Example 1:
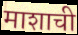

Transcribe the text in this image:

माशाची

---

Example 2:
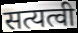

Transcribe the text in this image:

सत्यत्वी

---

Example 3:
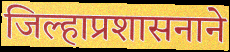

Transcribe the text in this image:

जिल्हाप्रशासनाने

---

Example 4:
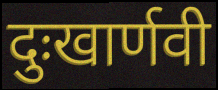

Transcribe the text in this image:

दुःखार्णवी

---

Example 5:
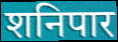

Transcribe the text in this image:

शनिपार